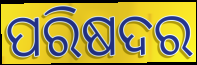
ପରିଷଦର